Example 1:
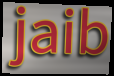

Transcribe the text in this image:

jaib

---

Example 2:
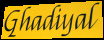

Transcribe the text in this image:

Ghadiyal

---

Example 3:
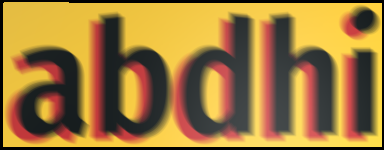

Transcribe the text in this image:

abdhi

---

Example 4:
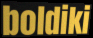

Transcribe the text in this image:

boldiki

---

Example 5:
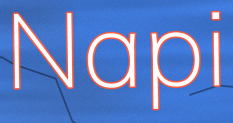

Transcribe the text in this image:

Napi